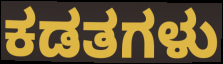
ಕಡತಗಳು